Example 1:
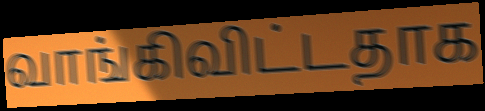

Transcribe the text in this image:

வாங்கிவிட்டதாக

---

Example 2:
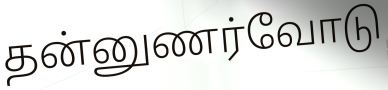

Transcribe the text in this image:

தன்னுணர்வோடு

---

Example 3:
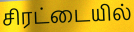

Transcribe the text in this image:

சிரட்டையில்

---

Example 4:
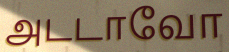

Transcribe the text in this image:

அடடாவோ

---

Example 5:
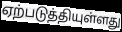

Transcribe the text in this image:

ஏற்படுத்தியுள்ளது